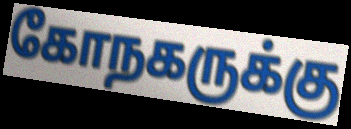
கோநகருக்கு